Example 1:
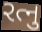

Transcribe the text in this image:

રત્નુ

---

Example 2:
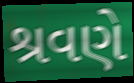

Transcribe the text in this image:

શ્રવણે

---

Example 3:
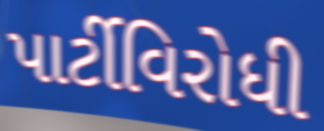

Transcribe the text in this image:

પાર્ટીવિરોધી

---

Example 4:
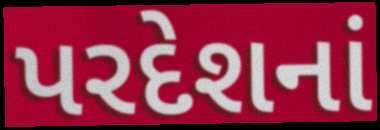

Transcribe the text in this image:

પરદેશનાં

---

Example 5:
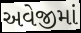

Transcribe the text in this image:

અવેજીમાં